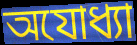
অযোধ্যা